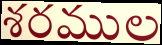
శరముల